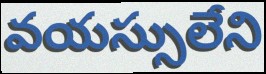
వయస్సులేని